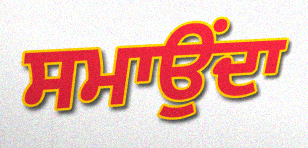
ਸਮਾਉਂਦਾ